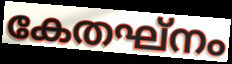
കേതഘ്നം